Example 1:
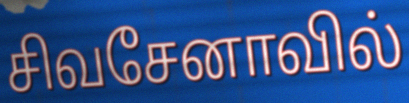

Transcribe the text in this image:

சிவசேனாவில்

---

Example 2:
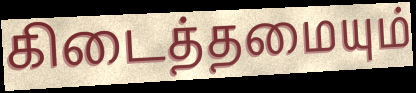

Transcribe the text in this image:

கிடைத்தமையும்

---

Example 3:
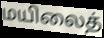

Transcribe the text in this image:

மயிலைத்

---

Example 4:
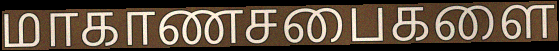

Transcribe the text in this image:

மாகாணசபைகளை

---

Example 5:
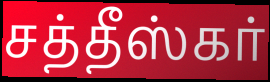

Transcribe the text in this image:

சத்தீஸ்கர்